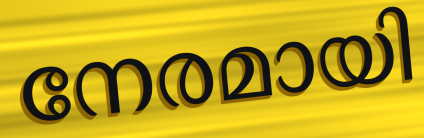
നേരമായി